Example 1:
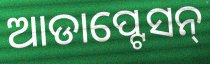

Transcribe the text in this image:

ଆଡାପ୍ଟେସନ୍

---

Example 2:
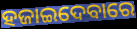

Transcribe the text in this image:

ହଜାଇଦେବାରେ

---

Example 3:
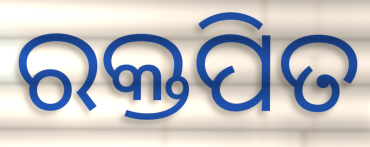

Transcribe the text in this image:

ରକ୍ତପିତ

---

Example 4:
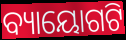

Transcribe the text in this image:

ବ୍ୟାୟୋଗଟି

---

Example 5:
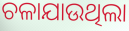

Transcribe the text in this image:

ଚଳାଯାଉଥିଲା